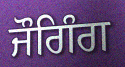
ਜੌਗਿੰਗ